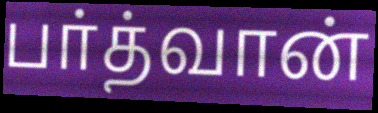
பர்த்வான்